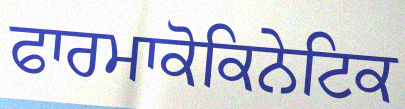
ਫਾਰਮਾਕੋਕਿਨੇਟਿਕ